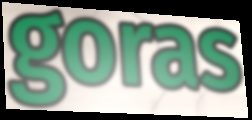
goras